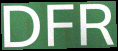
DFR